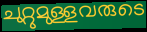
ചുറ്റുമുള്ളവരുടെ